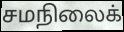
சமநிலைக்